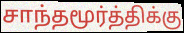
சாந்தமூர்த்திக்கு